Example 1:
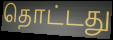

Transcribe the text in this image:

தொட்டது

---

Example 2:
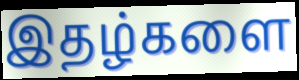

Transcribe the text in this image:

இதழ்களை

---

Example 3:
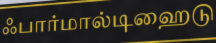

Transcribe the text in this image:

ஃபார்மால்டிஹைடு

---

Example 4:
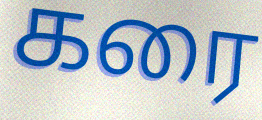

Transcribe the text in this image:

கரை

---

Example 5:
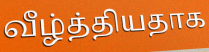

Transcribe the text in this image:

வீழ்த்தியதாக